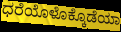
ಧರೆಯೊಳೊಕ್ಕೊಡೆಯಾ